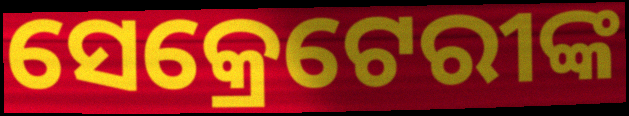
ସେକ୍ରେଟେରୀଙ୍କ